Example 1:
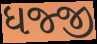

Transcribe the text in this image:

ધજ્જી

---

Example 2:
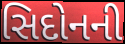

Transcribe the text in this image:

સિદોનની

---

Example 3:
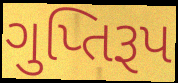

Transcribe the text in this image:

ગુપ્તિરૂપ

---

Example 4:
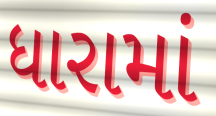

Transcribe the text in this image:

ધારામાં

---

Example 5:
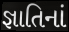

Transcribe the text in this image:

જ્ઞાતિનાં